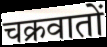
चक्रवातों